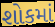
શોકમાં